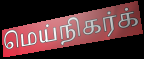
மெய்நிகர்க்